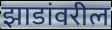
झाडांवरील